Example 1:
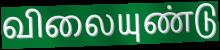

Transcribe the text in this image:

விலையுண்டு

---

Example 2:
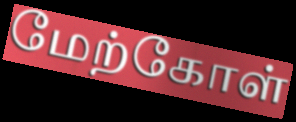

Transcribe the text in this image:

மேற்கோள்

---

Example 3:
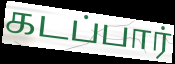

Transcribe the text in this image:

கடப்பார்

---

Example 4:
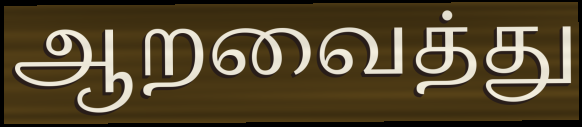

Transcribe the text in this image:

ஆறவைத்து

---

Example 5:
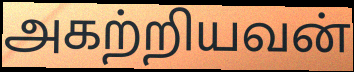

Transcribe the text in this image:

அகற்றியவன்